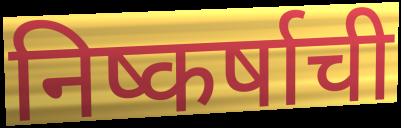
निष्कर्षाची